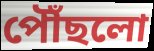
পৌঁছলো